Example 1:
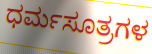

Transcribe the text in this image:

ಧರ್ಮಸೂತ್ರಗಳ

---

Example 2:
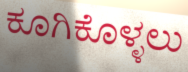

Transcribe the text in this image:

ಕೂಗಿಕೊಳ್ಳಲು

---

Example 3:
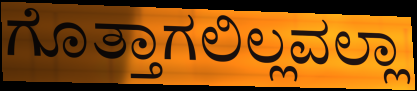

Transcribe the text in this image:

ಗೊತ್ತಾಗಲಿಲ್ಲವಲ್ಲಾ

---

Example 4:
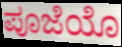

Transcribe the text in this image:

ಪೂಜೆಯೊ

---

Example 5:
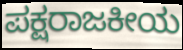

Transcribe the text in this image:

ಪಕ್ಷರಾಜಕೀಯ